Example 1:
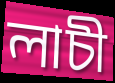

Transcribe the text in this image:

লাচী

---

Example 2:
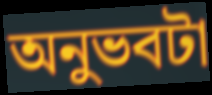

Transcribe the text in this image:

অনুভবটা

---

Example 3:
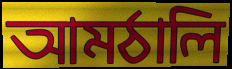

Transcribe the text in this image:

আমঠালি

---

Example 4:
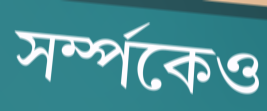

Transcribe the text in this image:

সৰ্ম্পকেও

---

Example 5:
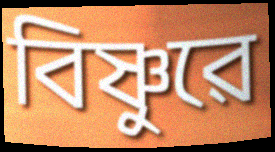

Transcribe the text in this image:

বিষ্ণুৱে